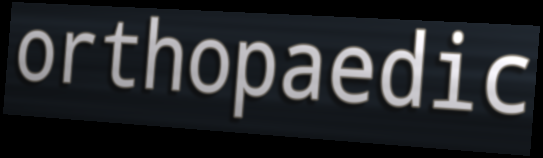
orthopaedic